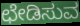
ಛೇಡಿಸುವ